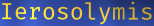
Ierosolymis